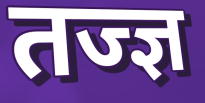
तज्ज्ञ